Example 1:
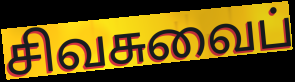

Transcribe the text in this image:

சிவசுவைப்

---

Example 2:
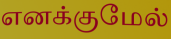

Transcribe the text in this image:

எனக்குமேல்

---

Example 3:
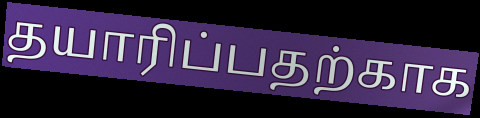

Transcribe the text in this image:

தயாரிப்பதற்காக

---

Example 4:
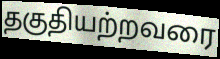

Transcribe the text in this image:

தகுதியற்றவரை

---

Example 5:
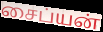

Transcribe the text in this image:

சைப்யன்